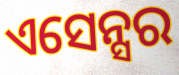
ଏସେନ୍ସର